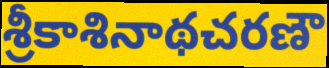
శ్రీకాశినాథచరణౌ